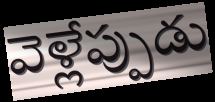
వెళ్లేప్పుడు